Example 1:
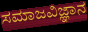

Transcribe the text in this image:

ಸಮಾಜವಿಜ್ಞಾನ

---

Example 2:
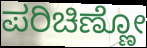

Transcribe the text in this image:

ಪರಿಚಿಣ್ಣೋ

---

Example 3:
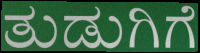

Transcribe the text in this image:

ತುಡುಗಿಗೆ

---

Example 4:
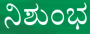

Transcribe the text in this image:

ನಿಶುಂಭ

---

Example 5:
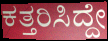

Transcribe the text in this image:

ಕತ್ತರಿಸಿದ್ದೇ